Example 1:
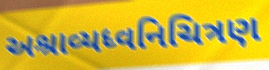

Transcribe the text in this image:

અશ્રાવ્યધ્વનિચિત્રણ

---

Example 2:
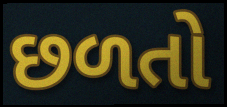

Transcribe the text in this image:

છળતો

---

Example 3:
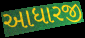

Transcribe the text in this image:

આધારજી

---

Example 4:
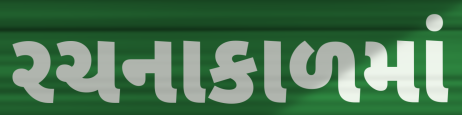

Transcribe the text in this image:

રચનાકાળમાં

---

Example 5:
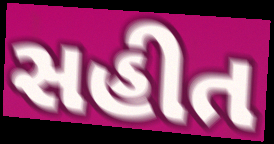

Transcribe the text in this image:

સહીત